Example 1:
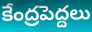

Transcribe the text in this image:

కేంద్రపెద్దలు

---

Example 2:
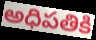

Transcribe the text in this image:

అధిపతికి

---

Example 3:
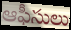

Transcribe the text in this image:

ఆఫీసులు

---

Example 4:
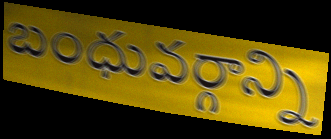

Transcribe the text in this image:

బంధువర్గాన్ని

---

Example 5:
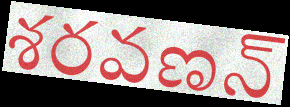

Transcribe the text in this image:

శరవణన్